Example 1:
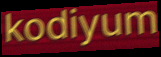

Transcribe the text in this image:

kodiyum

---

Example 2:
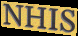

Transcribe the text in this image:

NHIS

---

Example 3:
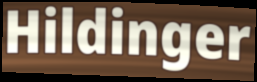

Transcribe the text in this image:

Hildinger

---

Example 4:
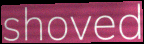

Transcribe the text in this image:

shoved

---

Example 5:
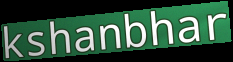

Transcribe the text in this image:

kshanbhar